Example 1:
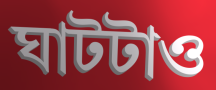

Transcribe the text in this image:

ঘাটটাও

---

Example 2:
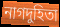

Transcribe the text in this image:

নাগদুহিতা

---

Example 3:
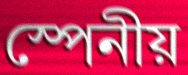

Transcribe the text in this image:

স্পেনীয়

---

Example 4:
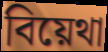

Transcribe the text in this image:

বিয়েথা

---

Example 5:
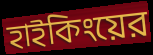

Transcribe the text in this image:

হাইকিংয়ের